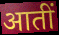
आतीं